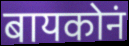
बायकोनं